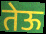
तेऊ